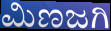
ಮಿಣಜಗಿ